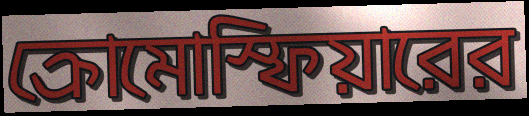
ক্রোমোস্ফিয়ারের